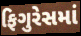
ફિગુરેસમાં